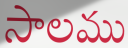
సాలము